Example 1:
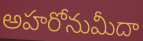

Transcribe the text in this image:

అహరోనుమీదా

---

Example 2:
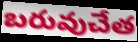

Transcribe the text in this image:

బరువుచేత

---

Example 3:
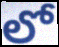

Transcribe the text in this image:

లో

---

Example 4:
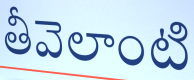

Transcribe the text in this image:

తీవెలాంటి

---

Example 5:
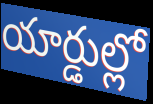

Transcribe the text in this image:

యార్డుల్లో